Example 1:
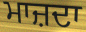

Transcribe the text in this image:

ਮਾਜ਼ਦਾ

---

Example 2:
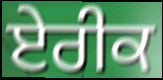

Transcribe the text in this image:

ਏਰੀਕ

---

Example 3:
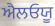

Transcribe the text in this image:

ਐਲਓਯੂ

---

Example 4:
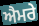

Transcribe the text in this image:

ਐਮਰੇ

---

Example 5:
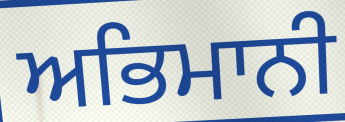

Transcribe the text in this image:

ਅਭਿਮਾਨੀ